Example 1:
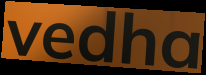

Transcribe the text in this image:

vedha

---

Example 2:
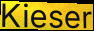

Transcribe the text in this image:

Kieser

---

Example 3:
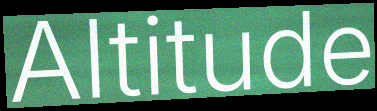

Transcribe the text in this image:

Altitude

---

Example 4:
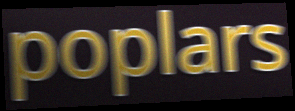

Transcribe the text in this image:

poplars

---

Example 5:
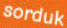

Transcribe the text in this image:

sorduk